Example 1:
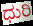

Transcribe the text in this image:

ಧುರಿ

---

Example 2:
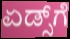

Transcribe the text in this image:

ಏಡ್ಸ್‌ಗೆ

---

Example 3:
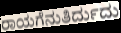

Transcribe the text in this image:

ರಾಯಗೆನುತಿರ್ದುದು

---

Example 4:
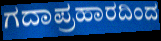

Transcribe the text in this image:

ಗದಾಪ್ರಹಾರದಿಂದ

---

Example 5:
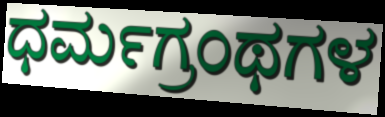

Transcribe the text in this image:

ಧರ್ಮಗ್ರಂಥಗಳ